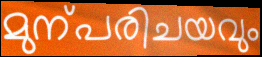
മുന്പരിചയവും